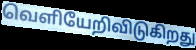
வெளியேறிவிடுகிறது